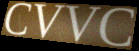
CVVC